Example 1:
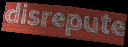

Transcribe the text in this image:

disrepute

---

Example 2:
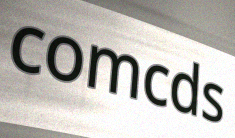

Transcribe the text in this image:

comcds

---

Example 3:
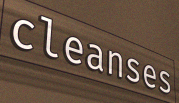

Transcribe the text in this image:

cleanses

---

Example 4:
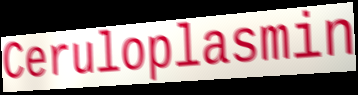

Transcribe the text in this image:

Ceruloplasmin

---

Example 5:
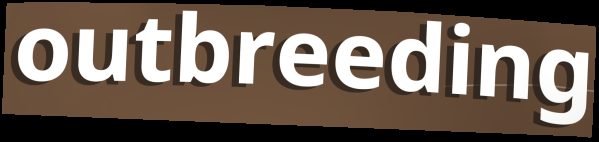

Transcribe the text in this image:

outbreeding